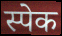
स्पेक